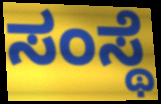
ಸಂಸ್ಥೆ